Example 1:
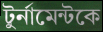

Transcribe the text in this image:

টুর্নামেন্টকে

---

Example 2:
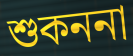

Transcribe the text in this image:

শুকননা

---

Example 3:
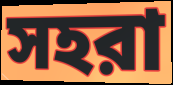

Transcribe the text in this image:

সহরা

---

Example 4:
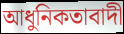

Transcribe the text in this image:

আধুনিকতাবাদী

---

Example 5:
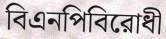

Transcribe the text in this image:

বিএনপিবিরোধী